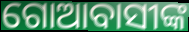
ଗୋଆବାସୀଙ୍କ